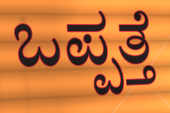
ಒಪ್ಪತ್ತೆ